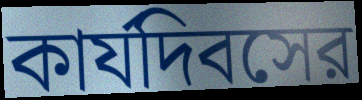
কার্যদিবসের